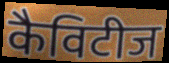
कैविटीज